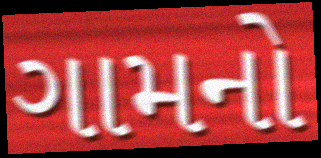
ગામનો